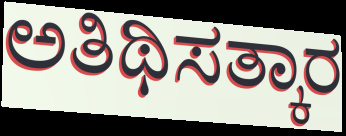
ಅತಿಥಿಸತ್ಕಾರ